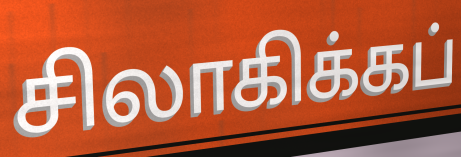
சிலாகிக்கப்